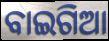
ବାଇଗିଆ